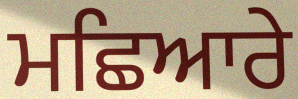
ਮਛਿਆਰੇ